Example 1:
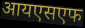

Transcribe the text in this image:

आयएसएफ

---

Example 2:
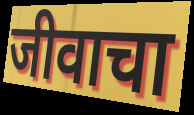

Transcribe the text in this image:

जीवाचा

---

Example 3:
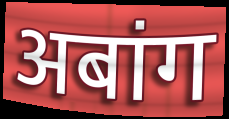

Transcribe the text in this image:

अबांग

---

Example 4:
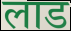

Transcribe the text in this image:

लाड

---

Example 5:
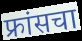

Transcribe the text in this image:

फ्रांसचा